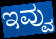
ಇವ್ವು